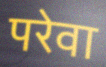
परेवा